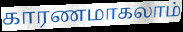
காரணமாகலாம்